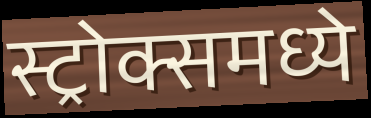
स्ट्रोक्समध्ये